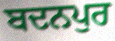
ਬਦਨਪੁਰ